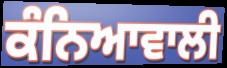
ਕੰਨਿਆਵਾਲੀ